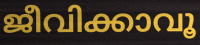
ജീവിക്കാവൂ